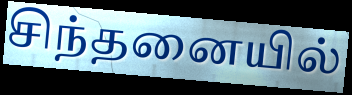
சிந்தனையில்